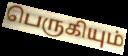
பெருகியும்